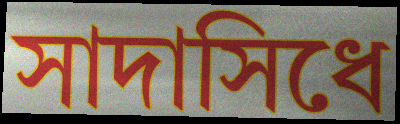
সাদাসিধে